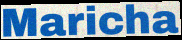
Maricha